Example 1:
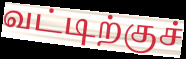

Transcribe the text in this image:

வட்டிற்குச்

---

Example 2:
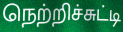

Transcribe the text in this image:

நெற்றிச்சுட்டி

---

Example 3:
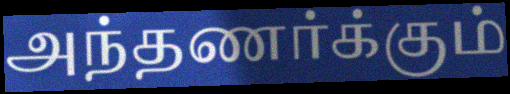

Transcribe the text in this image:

அந்தணர்க்கும்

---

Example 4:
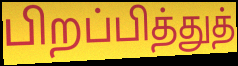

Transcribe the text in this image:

பிறப்பித்துத்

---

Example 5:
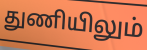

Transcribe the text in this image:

துணியிலும்